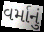
વર્માનું